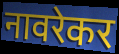
नावरेकर